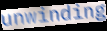
unwinding